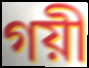
গয়ী